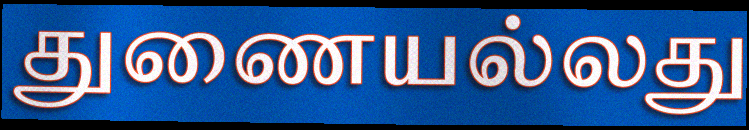
துணையல்லது